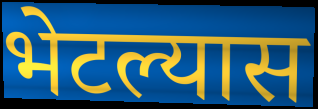
भेटल्यास